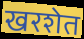
खरशेत